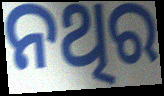
ନଥିର